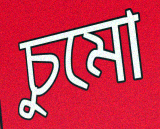
চুমো